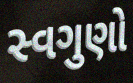
સ્વગુણો